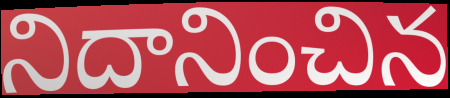
నిదానించిన